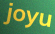
joyu